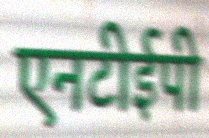
एनटीईपी